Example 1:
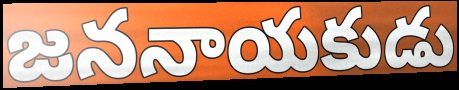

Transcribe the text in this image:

జననాయకుడు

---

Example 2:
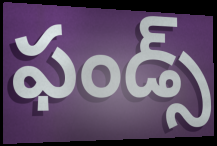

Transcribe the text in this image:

ఫండ్స్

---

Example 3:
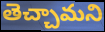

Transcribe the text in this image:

తెచ్చామని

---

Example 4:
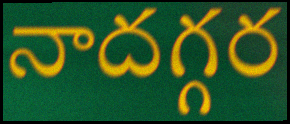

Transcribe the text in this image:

నాదగ్గర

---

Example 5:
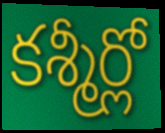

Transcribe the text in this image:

కశ్మీర్లో